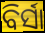
ବିର୍ସା